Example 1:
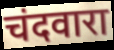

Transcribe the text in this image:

चंदवारा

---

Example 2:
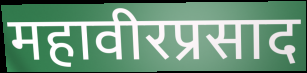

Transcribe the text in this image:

महावीरप्रसाद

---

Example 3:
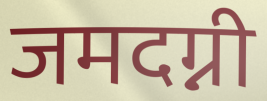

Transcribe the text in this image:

जमदग्नी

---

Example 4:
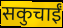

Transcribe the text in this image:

सकुचाईं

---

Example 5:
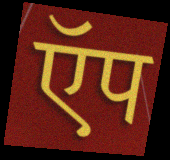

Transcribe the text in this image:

ऍप